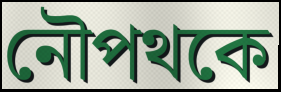
নৌপথকে